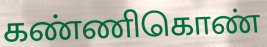
கண்ணிகொண்